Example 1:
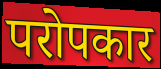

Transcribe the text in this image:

परोपकार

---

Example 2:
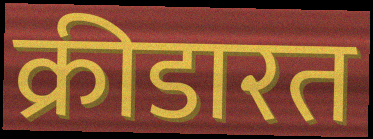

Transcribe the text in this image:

क्रीडारत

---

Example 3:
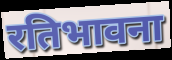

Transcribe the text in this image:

रतिभावना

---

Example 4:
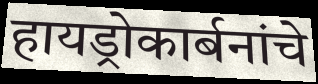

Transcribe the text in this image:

हायड्रोकार्बनांचे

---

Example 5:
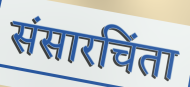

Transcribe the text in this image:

संसारचिंता